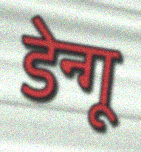
डेन्गू